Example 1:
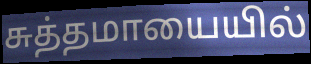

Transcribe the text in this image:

சுத்தமாயையில்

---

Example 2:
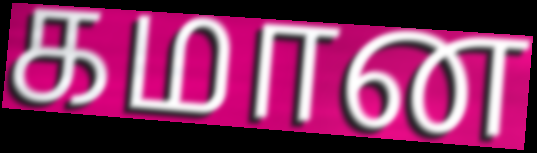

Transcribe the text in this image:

கமான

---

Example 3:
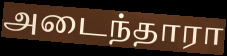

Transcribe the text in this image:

அடைந்தாரா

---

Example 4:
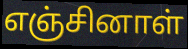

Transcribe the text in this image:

எஞ்சினாள்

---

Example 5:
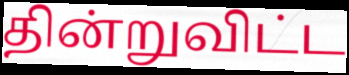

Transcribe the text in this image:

தின்றுவிட்ட